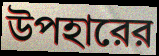
উপহারের